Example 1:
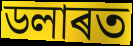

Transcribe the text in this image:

ডলাৰত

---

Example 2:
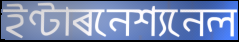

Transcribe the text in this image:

ইণ্টাৰনেশ্যনেল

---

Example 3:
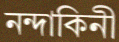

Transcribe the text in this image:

নন্দাকিনী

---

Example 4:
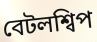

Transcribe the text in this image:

বেটলশ্বিপ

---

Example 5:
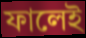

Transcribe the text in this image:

ফালেই